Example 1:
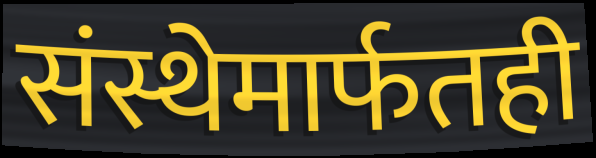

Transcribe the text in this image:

संस्थेमार्फतही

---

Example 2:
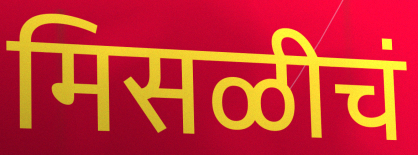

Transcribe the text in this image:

मिसळीचं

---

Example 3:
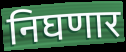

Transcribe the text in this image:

निघणार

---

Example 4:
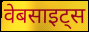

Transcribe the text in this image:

वेबसाइट्स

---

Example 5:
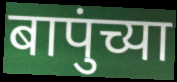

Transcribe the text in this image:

बापुंच्या